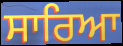
ਸਾਰਿਆ